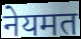
नेयमत